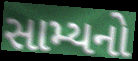
સામ્યનો